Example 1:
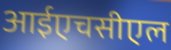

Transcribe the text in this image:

आईएचसीएल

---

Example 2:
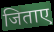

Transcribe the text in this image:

जिताए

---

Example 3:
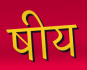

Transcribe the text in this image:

षीय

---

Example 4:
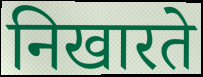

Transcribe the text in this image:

निखारते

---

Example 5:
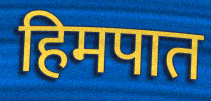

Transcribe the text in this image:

हिमपात